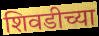
शिवडीच्या